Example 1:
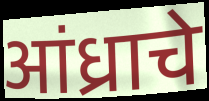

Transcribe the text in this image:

आंध्राचे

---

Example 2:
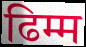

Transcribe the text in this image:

ढिम्म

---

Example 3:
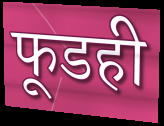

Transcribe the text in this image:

फूडही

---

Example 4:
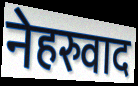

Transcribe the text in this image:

नेहरुवाद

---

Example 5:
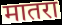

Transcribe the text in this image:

मातरा